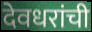
देवधरांची